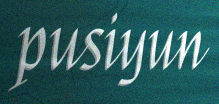
pusiyun